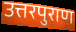
उत्तरपुराण